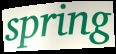
spring